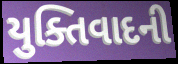
યુક્તિવાદની